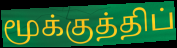
மூக்குத்திப்